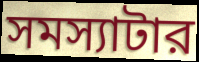
সমস্যাটার